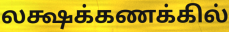
லக்ஷக்கணக்கில்